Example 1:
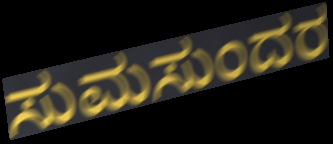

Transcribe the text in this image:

ಸುಮಸುಂದರ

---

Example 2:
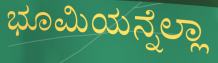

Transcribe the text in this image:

ಭೂಮಿಯನ್ನೆಲ್ಲಾ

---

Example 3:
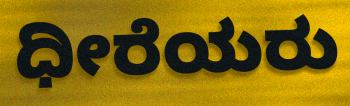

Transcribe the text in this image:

ಧೀರೆಯರು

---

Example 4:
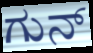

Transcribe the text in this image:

ಗುನ್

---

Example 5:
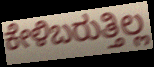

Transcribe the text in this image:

ಕೇಳಿಬರುತ್ತಿಲ್ಲ